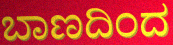
ಬಾಣದಿಂದ